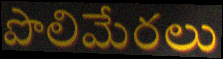
పొలిమేరలు